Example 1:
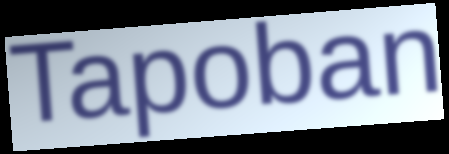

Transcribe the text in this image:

Tapoban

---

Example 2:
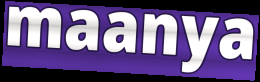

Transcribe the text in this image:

maanya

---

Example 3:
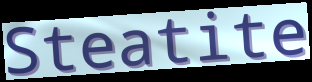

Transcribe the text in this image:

Steatite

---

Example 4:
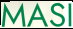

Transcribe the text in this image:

MASI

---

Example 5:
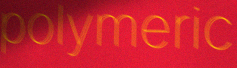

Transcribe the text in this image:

polymeric